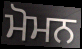
ਮੋਮਨ